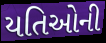
યતિઓની